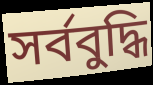
সৰ্ববুদ্ধি